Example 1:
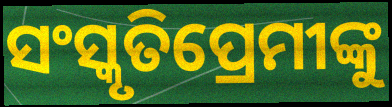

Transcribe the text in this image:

ସଂସ୍କୃତିପ୍ରେମୀଙ୍କୁ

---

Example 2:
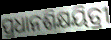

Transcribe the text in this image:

ପ୍ରଧାନଶିକ୍ଷୟିତ୍ରୀ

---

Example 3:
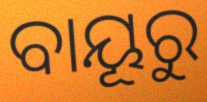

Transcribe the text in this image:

ବାୟୂରୁ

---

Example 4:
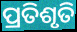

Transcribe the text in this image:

ପ୍ରତିଶୃତି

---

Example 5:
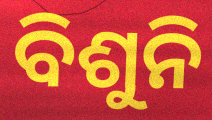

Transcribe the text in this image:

ବିଶୁନି